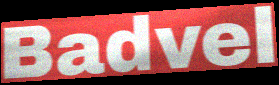
Badvel